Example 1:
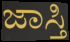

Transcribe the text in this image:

ಜಾಸ್ತಿ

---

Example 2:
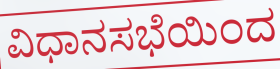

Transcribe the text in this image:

ವಿಧಾನಸಭೆಯಿಂದ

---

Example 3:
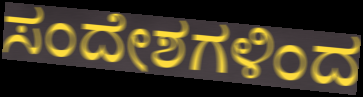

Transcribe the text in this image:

ಸಂದೇಶಗಳಿಂದ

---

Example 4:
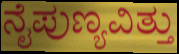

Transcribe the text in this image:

ನೈಪುಣ್ಯವಿತ್ತು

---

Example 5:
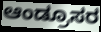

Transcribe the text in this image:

ಆಂಡ್ರೂಸರ